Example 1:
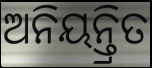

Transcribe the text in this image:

ଅନିୟନ୍ତ୍ରିତ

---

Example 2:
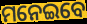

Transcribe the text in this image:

ମନେଇବେ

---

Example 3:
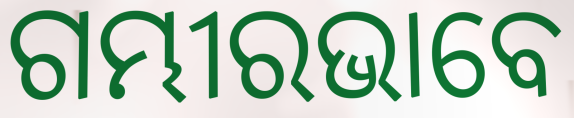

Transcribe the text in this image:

ଗମ୍ଭୀରଭାବେ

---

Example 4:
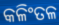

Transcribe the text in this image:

କଳିଂତଳ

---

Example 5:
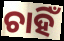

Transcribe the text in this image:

ଚାହିଁ